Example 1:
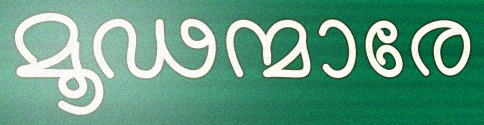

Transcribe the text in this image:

മൂഢന്മാരേ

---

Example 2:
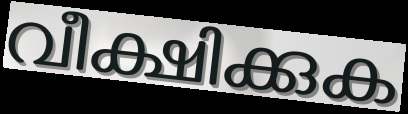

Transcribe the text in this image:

വീക്ഷിക്കുക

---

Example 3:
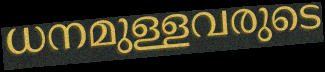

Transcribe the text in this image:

ധനമുള്ളവരുടെ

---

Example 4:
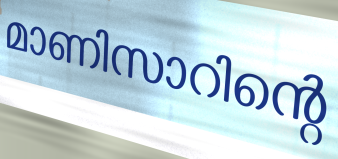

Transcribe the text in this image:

മാണിസാറിന്റെ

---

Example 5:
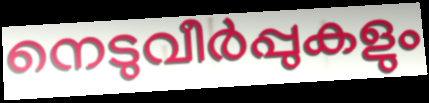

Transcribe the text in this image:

നെടുവീർപ്പുകളും